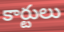
కార్టులు